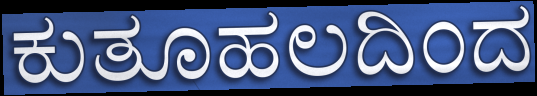
ಕುತೂಹಲದಿಂದ